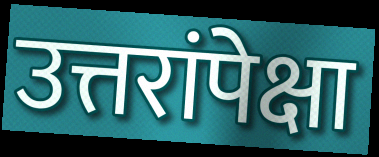
उत्तरांपेक्षा